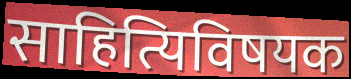
साहित्यिविषयक